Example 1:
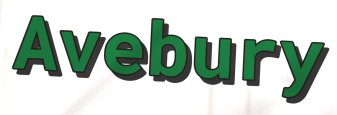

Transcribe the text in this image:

Avebury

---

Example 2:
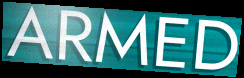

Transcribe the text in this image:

ARMED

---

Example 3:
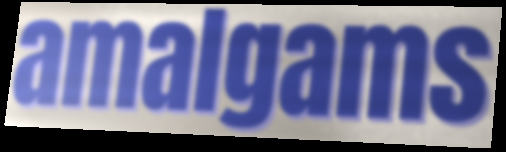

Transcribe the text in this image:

amalgams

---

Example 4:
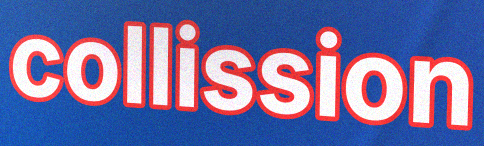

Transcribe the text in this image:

collission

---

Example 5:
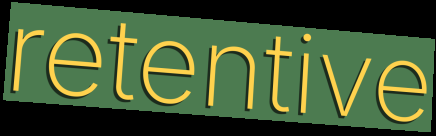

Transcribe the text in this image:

retentive